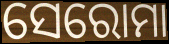
ସେରୋମା